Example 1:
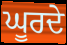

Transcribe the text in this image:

ਘੂਰਦੇ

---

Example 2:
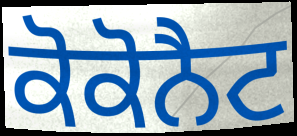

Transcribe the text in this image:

ਕੋਕੋਨੈਟ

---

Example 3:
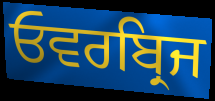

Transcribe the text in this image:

ਓਵਰਬ੍ਰਿਜ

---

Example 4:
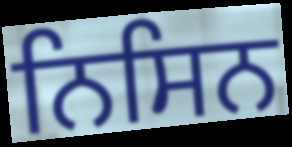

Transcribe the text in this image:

ਨਿਸਿਨ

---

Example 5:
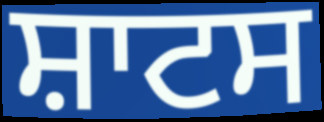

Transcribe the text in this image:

ਸ਼ਾਟਸ